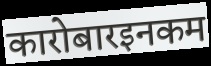
कारोबारइनकम